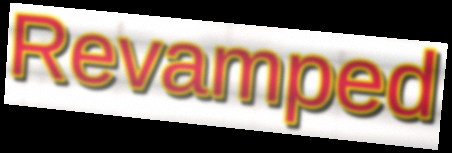
Revamped